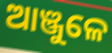
ଆଞ୍ଜୁଳେ